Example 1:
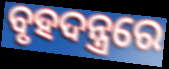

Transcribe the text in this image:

ବୃହଦନ୍ତ୍ରରେ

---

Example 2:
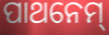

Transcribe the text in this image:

ପାଥନେମ୍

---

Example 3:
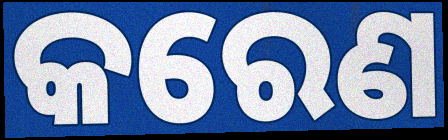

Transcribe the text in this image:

କରେଣ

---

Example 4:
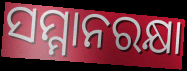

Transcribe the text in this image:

ସମ୍ମାନରକ୍ଷା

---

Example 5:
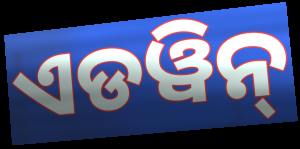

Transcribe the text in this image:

ଏଡୱିନ୍